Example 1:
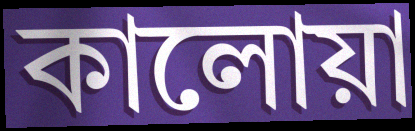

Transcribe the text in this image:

কালোয়া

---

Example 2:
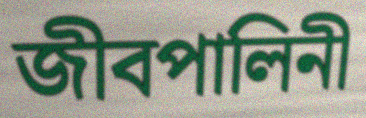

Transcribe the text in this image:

জীবপালিনী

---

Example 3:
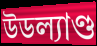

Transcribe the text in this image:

উডল্যাণ্ড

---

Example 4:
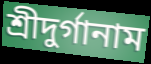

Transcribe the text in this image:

শ্রীদুর্গানাম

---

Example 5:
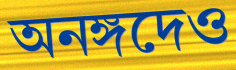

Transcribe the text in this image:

অনঙ্গদেও